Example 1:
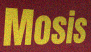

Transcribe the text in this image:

Mosis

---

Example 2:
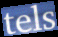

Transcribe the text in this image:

tels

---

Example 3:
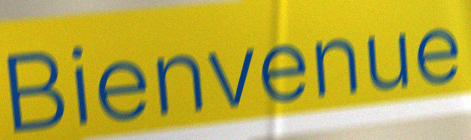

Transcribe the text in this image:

Bienvenue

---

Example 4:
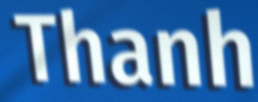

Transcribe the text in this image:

Thanh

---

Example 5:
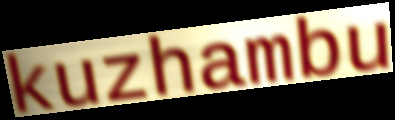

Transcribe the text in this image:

kuzhambu